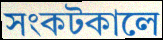
সংকটকালে